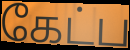
கேட்ப